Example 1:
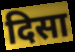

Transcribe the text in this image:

दिसा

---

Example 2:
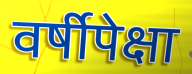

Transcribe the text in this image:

वर्षीपेक्षा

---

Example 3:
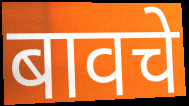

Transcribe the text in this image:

बावचे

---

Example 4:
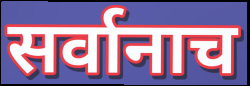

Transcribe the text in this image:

सर्वानाच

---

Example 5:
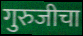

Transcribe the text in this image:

गुरुजीचा